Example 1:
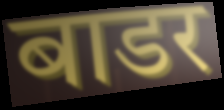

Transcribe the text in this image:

बाडर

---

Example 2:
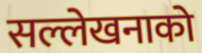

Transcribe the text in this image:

सल्लेखनाको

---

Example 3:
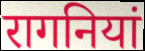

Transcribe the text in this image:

रागनियां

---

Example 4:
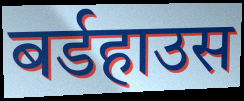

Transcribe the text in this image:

बर्डहाउस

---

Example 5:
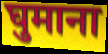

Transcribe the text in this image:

घुमाना